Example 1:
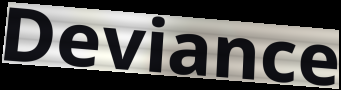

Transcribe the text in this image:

Deviance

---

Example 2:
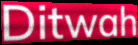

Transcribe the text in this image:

Ditwah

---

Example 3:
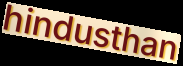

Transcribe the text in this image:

hindusthan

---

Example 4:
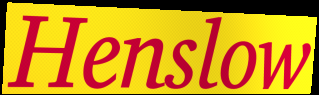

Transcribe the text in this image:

Henslow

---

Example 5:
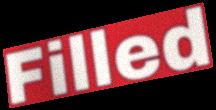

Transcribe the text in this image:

Filled